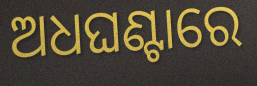
ଅଧଘଣ୍ଟାରେ